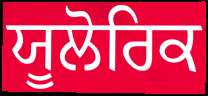
ਯੂਲੋਰਿਕ